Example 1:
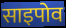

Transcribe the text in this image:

साइपोव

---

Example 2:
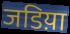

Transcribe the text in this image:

जडिय़ा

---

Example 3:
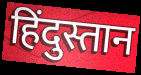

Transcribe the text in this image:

हिंदुस्तान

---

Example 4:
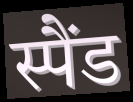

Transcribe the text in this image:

स्पैंड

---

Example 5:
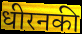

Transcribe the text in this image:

धीरनकी